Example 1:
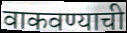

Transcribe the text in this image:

वाकवण्याची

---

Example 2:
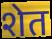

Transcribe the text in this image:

शेत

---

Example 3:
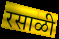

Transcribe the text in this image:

रसाळी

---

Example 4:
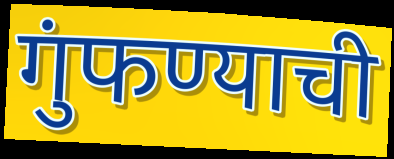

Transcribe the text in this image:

गुंफण्याची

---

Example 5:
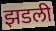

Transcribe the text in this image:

झडली